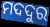
ମଦଦୁର